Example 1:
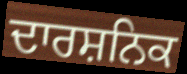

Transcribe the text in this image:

ਦਾਰਸ਼ਨਿਕ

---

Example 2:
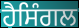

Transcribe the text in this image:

ਹੈਸਿੰਗਲ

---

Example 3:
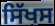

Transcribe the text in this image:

ਸਿੱਖਸ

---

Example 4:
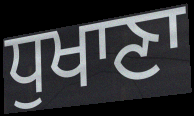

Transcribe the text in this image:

ਧੁਖਾਣਾ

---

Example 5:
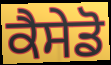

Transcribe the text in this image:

ਕੈਸੇਡੋ